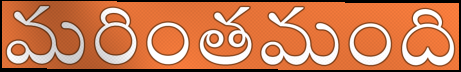
మరింతమంది